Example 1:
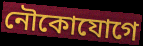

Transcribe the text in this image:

নৌকোযোগে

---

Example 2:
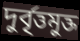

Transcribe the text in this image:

দুর্বৃত্তমুক্ত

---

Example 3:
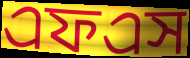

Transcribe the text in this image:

এফএস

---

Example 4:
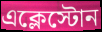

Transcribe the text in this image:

এক্লেস্টোন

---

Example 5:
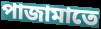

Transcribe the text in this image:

পাজামাতে